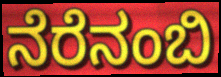
ನೆರೆನಂಬಿ